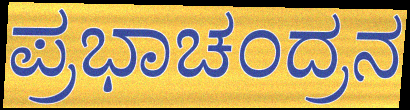
ಪ್ರಭಾಚಂದ್ರನ